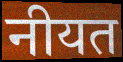
नीयत